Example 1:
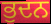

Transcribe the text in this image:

ਭੁਦਨ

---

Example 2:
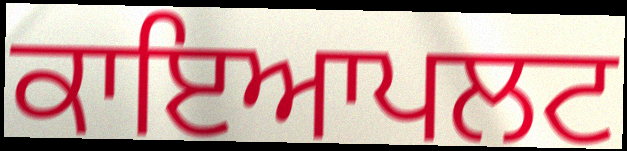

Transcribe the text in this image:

ਕਾਇਆਪਲਟ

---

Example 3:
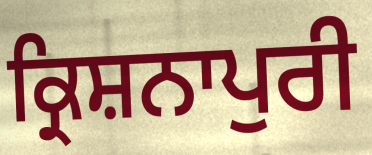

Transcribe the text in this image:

ਕ੍ਰਿਸ਼ਨਾਪੁਰੀ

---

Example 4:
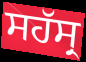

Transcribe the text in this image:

ਸਹੱਸ੍ਰ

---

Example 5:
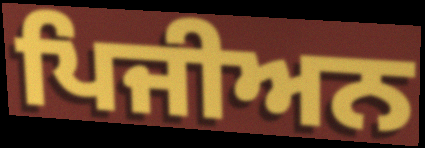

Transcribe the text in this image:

ਪਿਜੀਅਨ